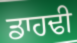
ਡਾਹਢੀ